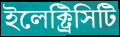
ইলেক্ট্রিসিটি